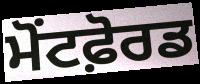
ਮੋਂਟਫ਼ੋਰਡ